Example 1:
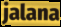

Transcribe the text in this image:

jalana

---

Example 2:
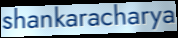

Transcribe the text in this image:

shankaracharya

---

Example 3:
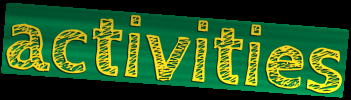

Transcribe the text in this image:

activities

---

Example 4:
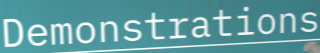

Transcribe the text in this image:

Demonstrations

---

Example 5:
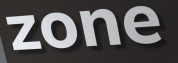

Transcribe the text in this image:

zone